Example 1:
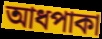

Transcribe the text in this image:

আধপাকা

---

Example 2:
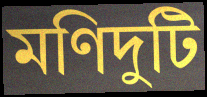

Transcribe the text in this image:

মণিদুটি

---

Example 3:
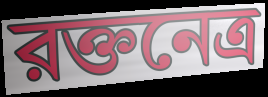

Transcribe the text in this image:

রক্তনেত্র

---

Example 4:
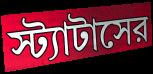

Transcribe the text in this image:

স্ট্যাটাসের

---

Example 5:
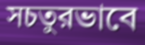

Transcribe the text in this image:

সচতুরভাবে